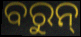
ବରୁନ୍